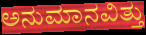
ಅನುಮಾನವಿತ್ತು